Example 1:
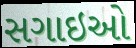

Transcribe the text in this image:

સગાઇઓ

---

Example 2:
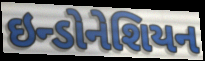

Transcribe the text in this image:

ઇન્ડોનેશિયન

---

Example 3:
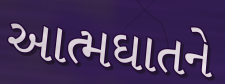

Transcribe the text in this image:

આત્મઘાતને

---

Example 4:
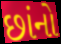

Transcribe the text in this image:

છાંનો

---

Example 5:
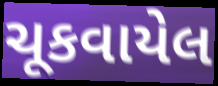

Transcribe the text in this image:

ચૂકવાયેલ